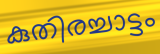
കുതിരച്ചാട്ടം